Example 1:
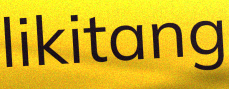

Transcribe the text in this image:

likitang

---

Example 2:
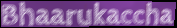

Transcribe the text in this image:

Bhaarukaccha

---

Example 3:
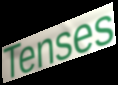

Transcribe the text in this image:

Tenses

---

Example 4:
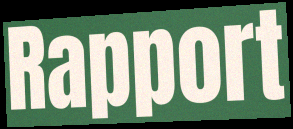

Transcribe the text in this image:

Rapport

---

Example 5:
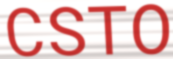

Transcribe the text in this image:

CSTO